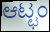
ಆಟ್ಟಂ